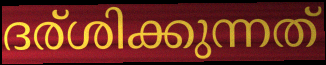
ദര്ശിക്കുന്നത്